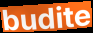
budite